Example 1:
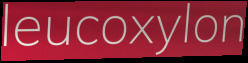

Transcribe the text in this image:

leucoxylon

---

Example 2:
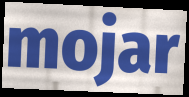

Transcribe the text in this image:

mojar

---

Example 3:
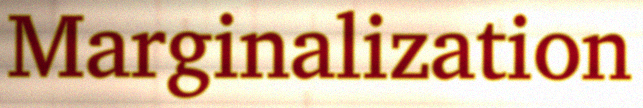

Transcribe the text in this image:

Marginalization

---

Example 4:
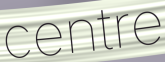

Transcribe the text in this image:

centre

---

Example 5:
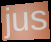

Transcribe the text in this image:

jus